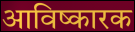
आविष्कारक